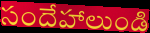
సందేహాలుండి